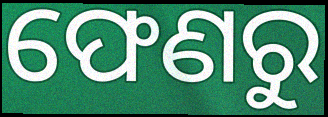
ଫେଣରୁ